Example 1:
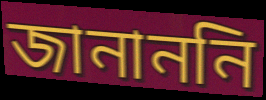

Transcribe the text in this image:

জানাননি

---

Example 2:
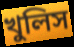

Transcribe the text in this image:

খুলিস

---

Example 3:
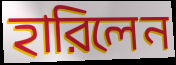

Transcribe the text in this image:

হারিলেন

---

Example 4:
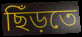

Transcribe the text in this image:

ছিঁড়তে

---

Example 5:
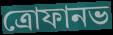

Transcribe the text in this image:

ত্রোফানভ